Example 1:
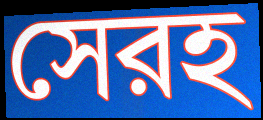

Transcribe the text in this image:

সেরহ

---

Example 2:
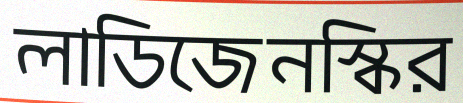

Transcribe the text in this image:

লাডিজেনস্কির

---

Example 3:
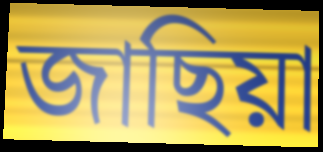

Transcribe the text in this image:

জাছিয়া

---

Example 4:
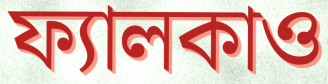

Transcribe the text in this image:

ফ্যালকাও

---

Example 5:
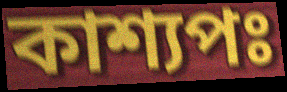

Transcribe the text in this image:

কাশ্যপঃ